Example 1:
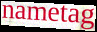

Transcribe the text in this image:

nametag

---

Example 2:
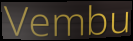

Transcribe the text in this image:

Vembu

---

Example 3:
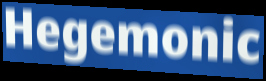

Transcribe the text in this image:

Hegemonic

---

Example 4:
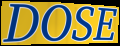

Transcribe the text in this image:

DOSE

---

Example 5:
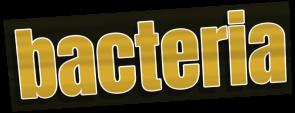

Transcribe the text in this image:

bacteria